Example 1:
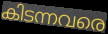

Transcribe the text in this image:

കിടന്നവരെ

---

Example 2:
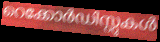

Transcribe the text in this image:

റെക്കോർഡിസ്റ്റുകൾ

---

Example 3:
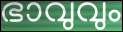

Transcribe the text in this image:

ഭാവുവും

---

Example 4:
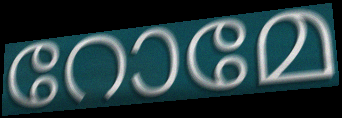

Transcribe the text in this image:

റോമേ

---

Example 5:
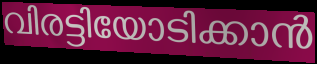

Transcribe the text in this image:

വിരട്ടിയോടിക്കാൻ